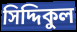
সিদ্দিকুল